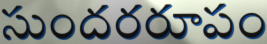
సుందరరూపం